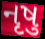
નૃષુ